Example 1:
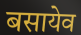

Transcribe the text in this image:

बसायेव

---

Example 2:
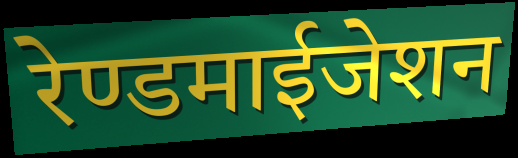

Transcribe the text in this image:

रेण्डमाईजेशन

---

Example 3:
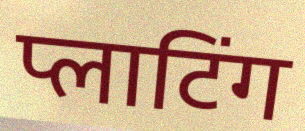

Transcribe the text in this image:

प्लाटिंग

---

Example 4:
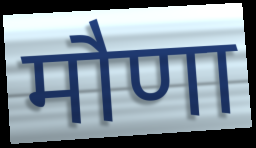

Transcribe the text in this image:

मौणा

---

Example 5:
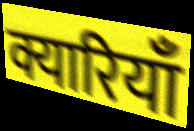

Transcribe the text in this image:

क्यारियाँ